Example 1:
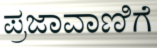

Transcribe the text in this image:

ಪ್ರಜಾವಾಣಿಗೆ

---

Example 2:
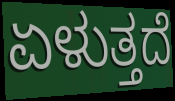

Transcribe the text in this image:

ಏಳುತ್ತದೆ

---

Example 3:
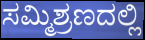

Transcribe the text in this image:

ಸಮ್ಮಿಶ್ರಣದಲ್ಲಿ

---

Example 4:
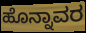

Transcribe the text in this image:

ಹೊನ್ನಾವರ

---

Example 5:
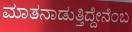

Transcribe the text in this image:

ಮಾತನಾಡುತ್ತಿದ್ದೇನೆಂಬ